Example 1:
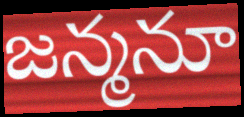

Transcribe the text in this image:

జన్మనూ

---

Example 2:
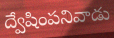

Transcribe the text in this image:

ద్వేషింపనివాడు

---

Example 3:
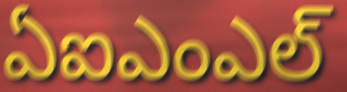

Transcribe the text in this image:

ఏఐఎంఎల్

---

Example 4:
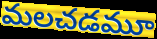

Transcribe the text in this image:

మలచడమూ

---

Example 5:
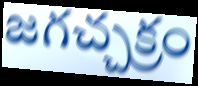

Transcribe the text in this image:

జగచ్చక్రం